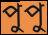
পুপু